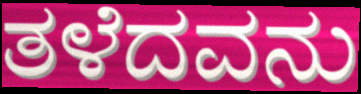
ತಳೆದವನು